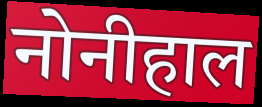
नोनीहाल